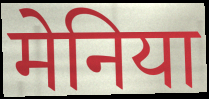
मेनिया